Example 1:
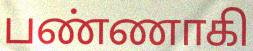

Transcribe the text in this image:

பண்ணாகி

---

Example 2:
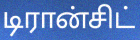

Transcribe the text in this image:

டிரான்சிட்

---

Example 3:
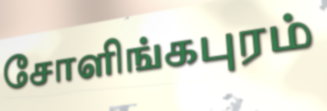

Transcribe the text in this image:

சோளிங்கபுரம்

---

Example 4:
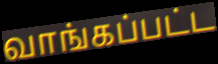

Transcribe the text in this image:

வாங்கப்பட்ட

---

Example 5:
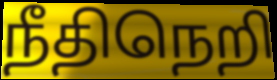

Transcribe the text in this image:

நீதிநெறி